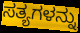
ಸತ್ಯಗಳನ್ನು